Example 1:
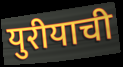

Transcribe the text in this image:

युरीयाची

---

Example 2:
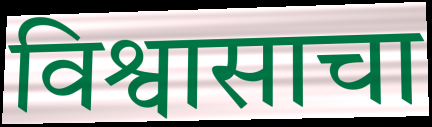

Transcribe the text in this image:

विश्वासाचा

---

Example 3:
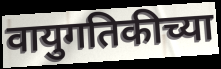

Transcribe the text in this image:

वायुगतिकीच्या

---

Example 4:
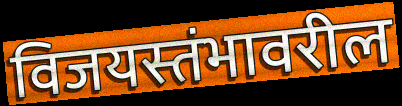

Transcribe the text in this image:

विजयस्तंभावरील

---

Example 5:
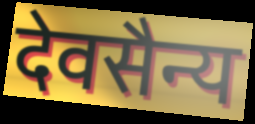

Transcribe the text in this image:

देवसैन्य